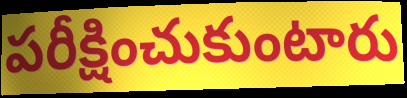
పరీక్షించుకుంటారు